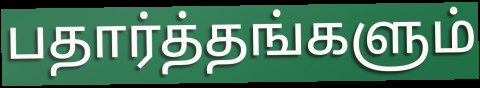
பதார்த்தங்களும்